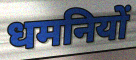
धमनियों